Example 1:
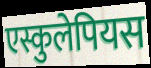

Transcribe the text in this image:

एस्कुलेपियस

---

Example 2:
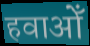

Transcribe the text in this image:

हवाओँ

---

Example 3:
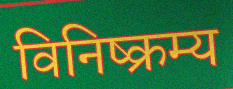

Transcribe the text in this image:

विनिष्क्रम्य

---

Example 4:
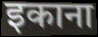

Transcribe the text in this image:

इकाना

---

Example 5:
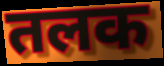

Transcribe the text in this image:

तलक